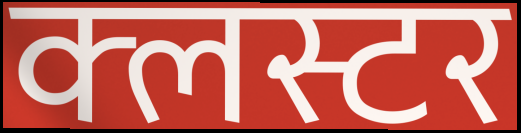
क्‍लस्‍टर